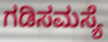
ಗಡಿಸಮಸ್ಯೆ